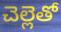
చెల్లెతో